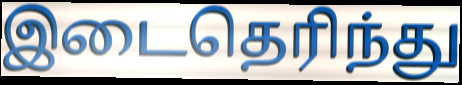
இடைதெரிந்து